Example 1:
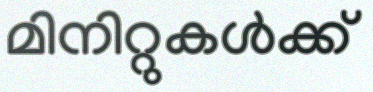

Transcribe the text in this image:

മിനിറ്റുകൾക്ക്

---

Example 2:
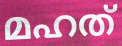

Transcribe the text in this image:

മഹത്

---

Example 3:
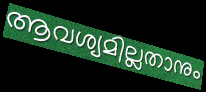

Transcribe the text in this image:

ആവശ്യമില്ലതാനും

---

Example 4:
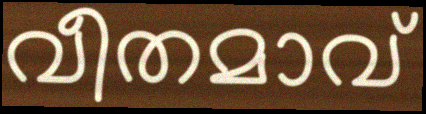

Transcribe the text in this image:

വീതമാവ്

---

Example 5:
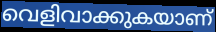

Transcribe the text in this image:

വെളിവാക്കുകയാണ്